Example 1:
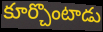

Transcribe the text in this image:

కూర్చొంటాడు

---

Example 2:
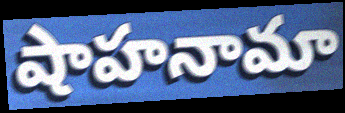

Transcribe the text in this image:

షాహనామా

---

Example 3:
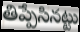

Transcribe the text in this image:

తిప్పేసినట్టు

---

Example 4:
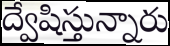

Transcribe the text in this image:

ద్వేషిస్తున్నారు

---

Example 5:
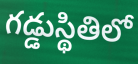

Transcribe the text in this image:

గడ్డుస్థితిలో